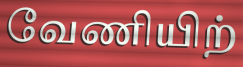
வேணியிற்